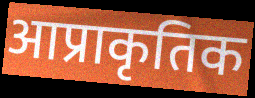
आप्राकृतिक